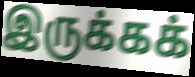
இருக்கக்